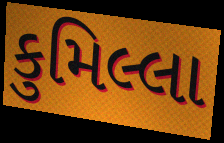
કુમિલ્લા